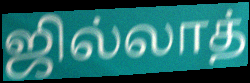
ஜில்லாத்